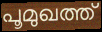
പൂമുഖത്ത്